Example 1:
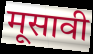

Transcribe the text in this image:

मूसावी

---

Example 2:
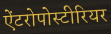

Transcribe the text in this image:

ऐंटरोपोस्टीरियर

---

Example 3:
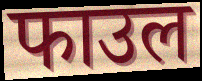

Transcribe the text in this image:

फाउल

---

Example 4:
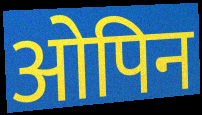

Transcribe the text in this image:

ओपिन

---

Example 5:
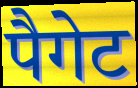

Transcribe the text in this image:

पैगेट